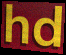
hd